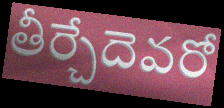
తీర్చేదెవరో